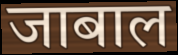
जाबाल